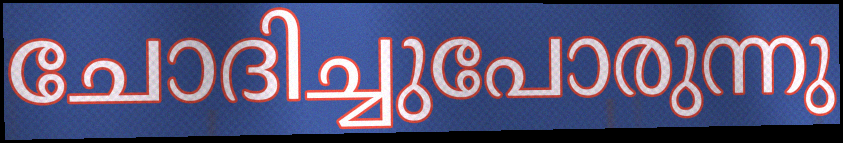
ചോദിച്ചുപോരുന്നു